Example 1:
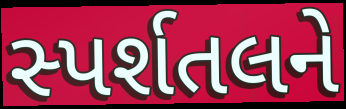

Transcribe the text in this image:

સ્પર્શતલને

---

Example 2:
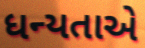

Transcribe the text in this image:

ધન્યતાએ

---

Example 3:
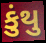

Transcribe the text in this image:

કુંથુ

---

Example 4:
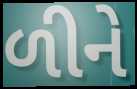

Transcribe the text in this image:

ળીને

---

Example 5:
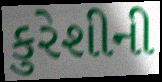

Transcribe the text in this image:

કુરેશીની